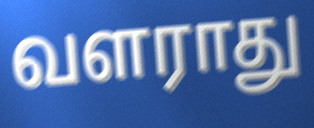
வளராது